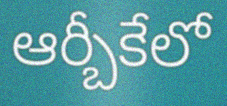
ఆర్బీకేలో